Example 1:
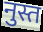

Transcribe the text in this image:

नुस्त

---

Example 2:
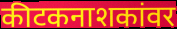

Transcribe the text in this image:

कीटकनाशकांवर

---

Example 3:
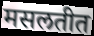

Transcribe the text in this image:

मसलतीत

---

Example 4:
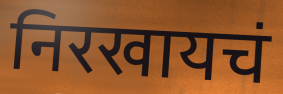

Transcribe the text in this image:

निरखायचं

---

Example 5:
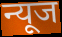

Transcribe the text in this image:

न्यूज